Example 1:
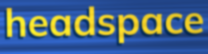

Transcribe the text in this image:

headspace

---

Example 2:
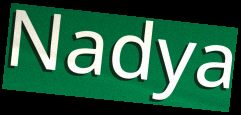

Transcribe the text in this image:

Nadya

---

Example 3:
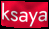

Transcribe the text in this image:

ksaya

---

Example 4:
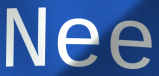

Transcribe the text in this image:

Nee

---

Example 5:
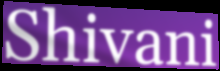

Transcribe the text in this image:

Shivani